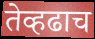
तेव्हढाच